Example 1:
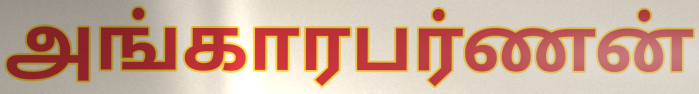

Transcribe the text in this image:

அங்காரபர்ணன்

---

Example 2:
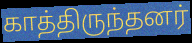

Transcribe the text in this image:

காத்திருந்தனர்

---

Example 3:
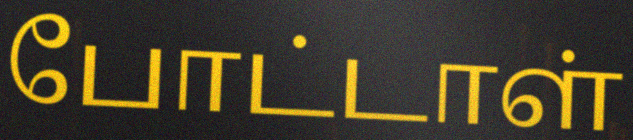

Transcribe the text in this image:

போட்டாள்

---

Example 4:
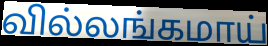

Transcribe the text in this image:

வில்லங்கமாய்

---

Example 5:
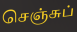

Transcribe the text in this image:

செஞ்சுப்